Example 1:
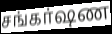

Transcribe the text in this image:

சங்கர்ஷண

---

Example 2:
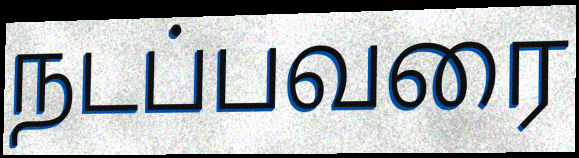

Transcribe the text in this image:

நடப்பவரை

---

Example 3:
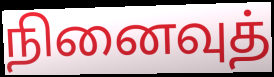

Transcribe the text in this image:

நினைவுத்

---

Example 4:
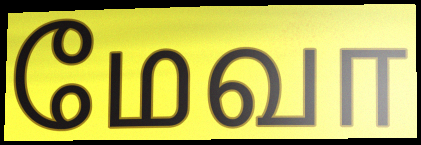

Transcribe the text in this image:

மேவா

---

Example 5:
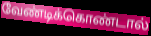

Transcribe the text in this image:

வேண்டிக்கொண்டால்